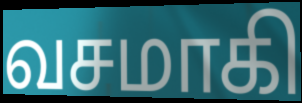
வசமாகி